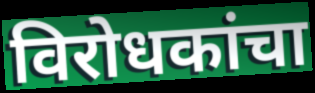
विरोधकांचा